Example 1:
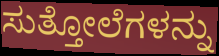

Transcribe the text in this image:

ಸುತ್ತೋಲೆಗಳನ್ನು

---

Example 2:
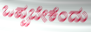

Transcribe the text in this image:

ಒಪ್ಪಬೇಕೆಂದು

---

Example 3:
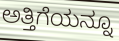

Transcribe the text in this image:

ಅತ್ತಿಗೆಯನ್ನೂ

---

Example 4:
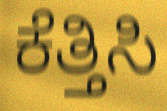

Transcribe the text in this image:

ಕೆತ್ತಿಸಿ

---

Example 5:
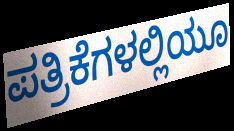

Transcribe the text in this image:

ಪತ್ರಿಕೆಗಳಲ್ಲಿಯೂ